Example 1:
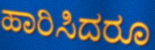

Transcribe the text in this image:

ಹಾರಿಸಿದರೂ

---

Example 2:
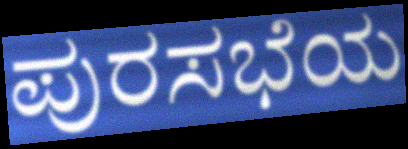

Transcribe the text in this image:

ಪುರಸಭೆಯ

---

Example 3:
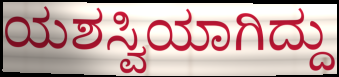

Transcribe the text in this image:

ಯಶಸ್ವಿಯಾಗಿದ್ದು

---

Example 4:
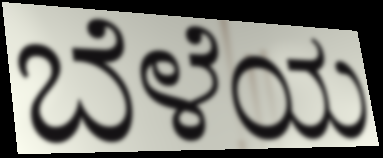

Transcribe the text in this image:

ಬೆಳೆಯ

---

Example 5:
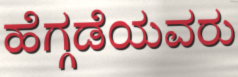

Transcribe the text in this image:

ಹೆಗ್ಗಡೆಯವರು